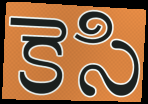
కెసి